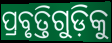
ପ୍ରବୃତ୍ତିଗୁଡ଼ିକୁ